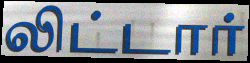
லிட்டார்